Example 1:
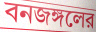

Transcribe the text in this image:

বনজঙ্গলের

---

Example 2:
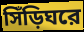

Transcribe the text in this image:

সিঁড়িঘরে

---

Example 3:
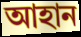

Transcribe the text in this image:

আহান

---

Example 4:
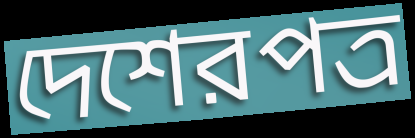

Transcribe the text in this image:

দেশেরপত্র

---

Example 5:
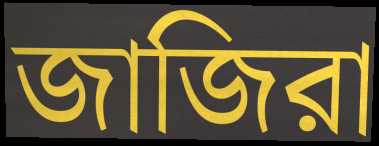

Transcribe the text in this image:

জাজিরা